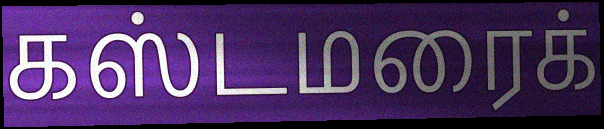
கஸ்டமரைக்